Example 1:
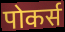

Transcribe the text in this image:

पोकर्स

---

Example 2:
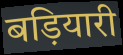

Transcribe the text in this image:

बड़ियारी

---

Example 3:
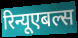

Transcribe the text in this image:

रिन्यूएबल्स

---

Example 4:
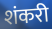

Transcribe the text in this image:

शंकरी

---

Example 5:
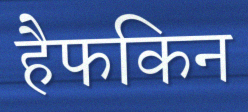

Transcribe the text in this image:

हैफकिन